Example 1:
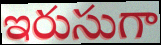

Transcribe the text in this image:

ఇరుసుగా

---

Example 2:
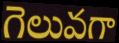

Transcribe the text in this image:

గెలువగా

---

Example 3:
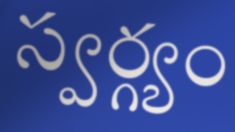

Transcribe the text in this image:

స్వర్గ్యం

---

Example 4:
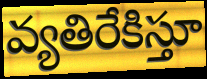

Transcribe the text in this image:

వ్యతిరేకిస్తూ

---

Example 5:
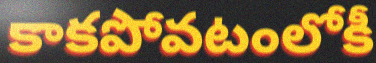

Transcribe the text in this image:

కాకపోవటంలోకీ